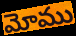
మోము